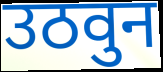
उठवुन